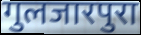
गुलजारपुरा